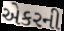
એકરની